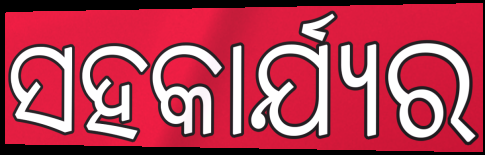
ସହକାର୍ଯ୍ୟର